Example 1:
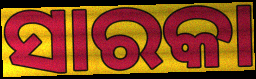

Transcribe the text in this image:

ସାରକା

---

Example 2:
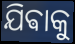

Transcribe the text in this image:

ଯିଵାକୁ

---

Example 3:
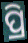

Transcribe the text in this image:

ପ୍ରି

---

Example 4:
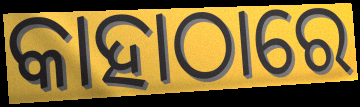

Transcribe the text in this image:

କାହାଠାରେ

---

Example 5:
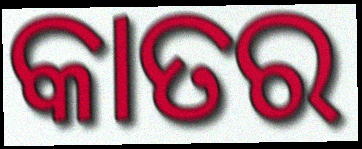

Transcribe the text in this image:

କାତର